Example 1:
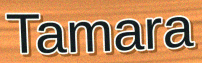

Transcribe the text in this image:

Tamara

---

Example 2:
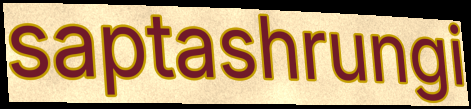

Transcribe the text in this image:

saptashrungi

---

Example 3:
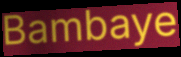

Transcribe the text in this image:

Bambaye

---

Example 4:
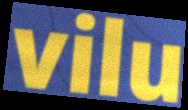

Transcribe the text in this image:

vilu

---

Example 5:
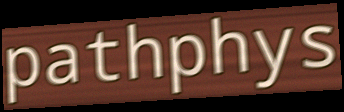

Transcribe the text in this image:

pathphys